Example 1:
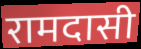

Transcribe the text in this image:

रामदासी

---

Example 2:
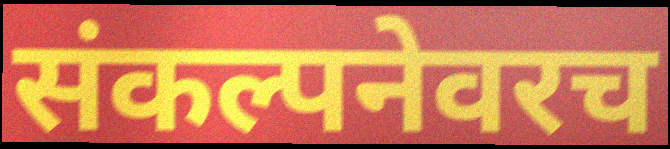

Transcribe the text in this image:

संकल्पनेवरच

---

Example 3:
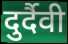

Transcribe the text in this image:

दुर्दैवी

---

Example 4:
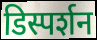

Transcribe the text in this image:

डिस्पर्शन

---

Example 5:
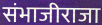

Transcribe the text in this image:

संभाजीराजा